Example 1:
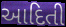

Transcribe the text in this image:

આદિતી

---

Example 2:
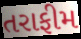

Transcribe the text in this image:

તરાફીમ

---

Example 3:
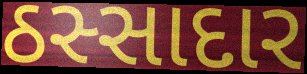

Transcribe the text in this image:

ઠસ્સાદાર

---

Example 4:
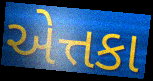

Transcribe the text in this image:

એત્તકા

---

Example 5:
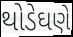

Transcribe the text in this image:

થોડેઘણે